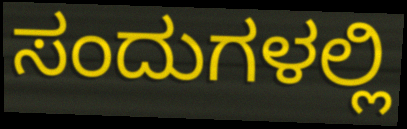
ಸಂದುಗಳಲ್ಲಿ